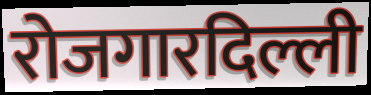
रोजगारदिल्ली